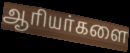
ஆரியர்களை